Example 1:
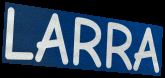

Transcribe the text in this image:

LARRA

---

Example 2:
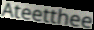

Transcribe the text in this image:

Ateetthee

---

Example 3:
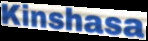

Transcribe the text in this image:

Kinshasa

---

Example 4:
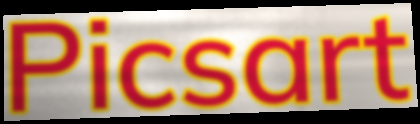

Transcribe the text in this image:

Picsart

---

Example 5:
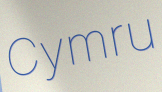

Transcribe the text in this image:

Cymru